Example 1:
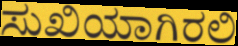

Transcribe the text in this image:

ಸುಖಿಯಾಗಿರಲಿ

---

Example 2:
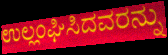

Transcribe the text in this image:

ಉಲ್ಲಂಘಿಸಿದವರನ್ನು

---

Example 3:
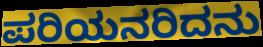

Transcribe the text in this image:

ಪರಿಯನರಿದನು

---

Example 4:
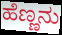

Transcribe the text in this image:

ಹೆಣ್ಣನು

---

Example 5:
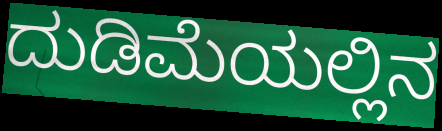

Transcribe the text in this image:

ದುಡಿಮೆಯಲ್ಲಿನ